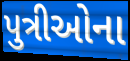
પુત્રીઓના